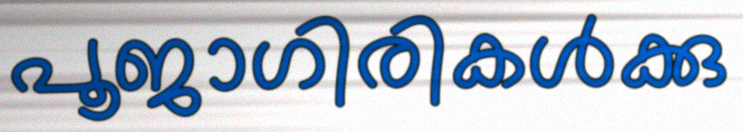
പൂജാഗിരികൾക്കു